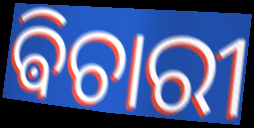
ଵିଚାରୀ